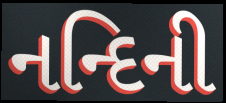
નન્દિની